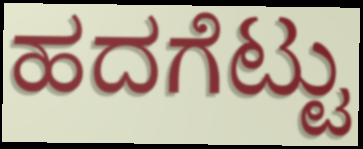
ಹದಗೆಟ್ಟು